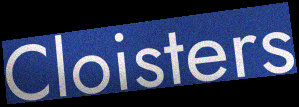
Cloisters